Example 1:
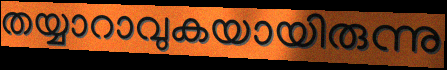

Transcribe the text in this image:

തയ്യാറാവുകയായിരുന്നു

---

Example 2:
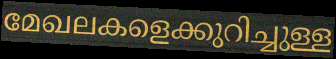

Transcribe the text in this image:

മേഖലകളെക്കുറിച്ചുള്ള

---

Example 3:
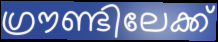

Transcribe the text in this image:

ഗ്രൗണ്ടിലേക്ക്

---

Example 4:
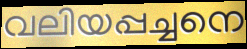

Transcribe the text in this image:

വലിയപ്പച്ചനെ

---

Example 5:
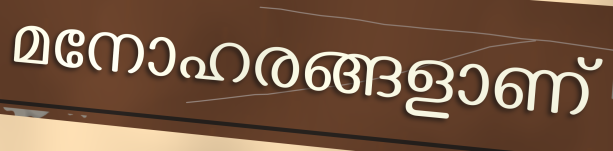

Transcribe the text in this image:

മനോഹരങ്ങളാണ്